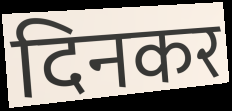
दिनकर